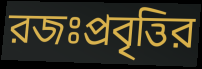
রজঃপ্রবৃত্তির